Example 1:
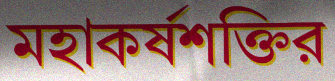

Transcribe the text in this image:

মহাকর্ষশক্তির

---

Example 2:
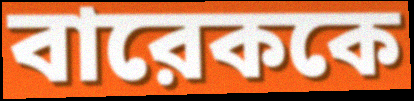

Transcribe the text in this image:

বারেককে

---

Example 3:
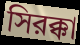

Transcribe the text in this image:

সিরক্কা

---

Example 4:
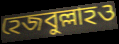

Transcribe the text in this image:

হেজবুল্লাহও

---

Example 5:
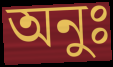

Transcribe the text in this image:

অনুঃ